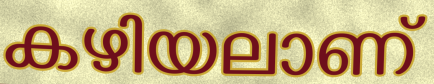
കഴിയലാണ്